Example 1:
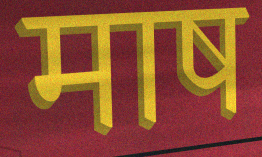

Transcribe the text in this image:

माष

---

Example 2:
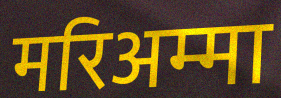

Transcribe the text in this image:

मरिअम्मा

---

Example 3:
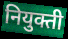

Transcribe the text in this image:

नियुक्ती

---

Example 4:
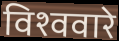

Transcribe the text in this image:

विश्ववारे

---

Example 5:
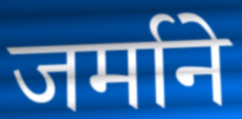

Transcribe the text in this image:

जर्माने